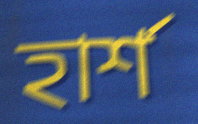
হার্শ